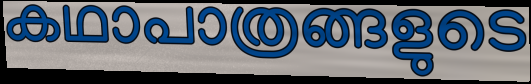
കഥാപാത്രങ്ങളുടെ